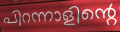
പിറന്നാളിന്റെ